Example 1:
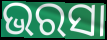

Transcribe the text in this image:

ଭରସା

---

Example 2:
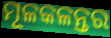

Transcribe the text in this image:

ମୂଳକଳନ୍ତର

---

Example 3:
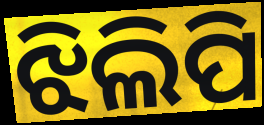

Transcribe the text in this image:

ଝିଲିପି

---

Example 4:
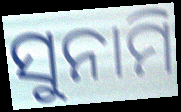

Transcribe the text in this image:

ସୁନାମି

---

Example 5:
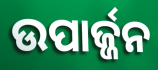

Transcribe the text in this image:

ଉପାର୍ଜ୍ଜନ